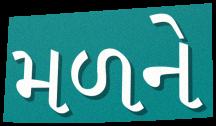
મળને